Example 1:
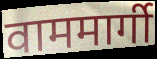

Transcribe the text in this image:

वाममार्गी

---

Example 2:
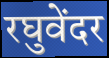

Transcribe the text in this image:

रघुवेंदर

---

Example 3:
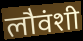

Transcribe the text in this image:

लौवंशी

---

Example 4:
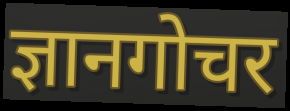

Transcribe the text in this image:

ज्ञानगोचर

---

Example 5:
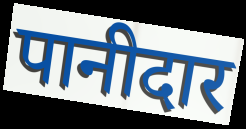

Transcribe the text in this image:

पानीदार